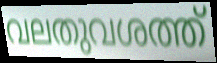
വലതുവശത്ത്